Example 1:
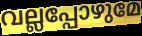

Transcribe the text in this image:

വല്ലപ്പോഴുമേ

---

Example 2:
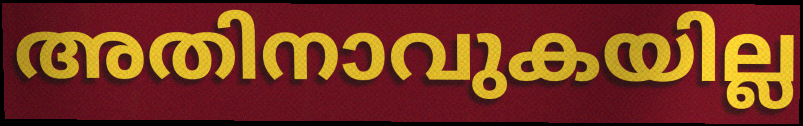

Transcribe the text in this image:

അതിനാവുകയില്ല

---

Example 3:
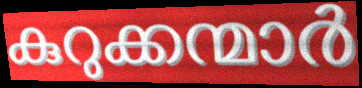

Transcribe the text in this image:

കുറുക്കന്മാർ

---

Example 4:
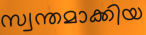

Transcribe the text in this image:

സ്വന്തമാക്കിയ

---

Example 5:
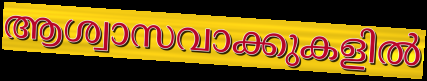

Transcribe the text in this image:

ആശ്വാസവാക്കുകളിൽ